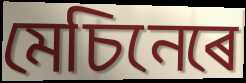
মেচিনেৰে